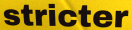
stricter